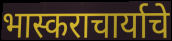
भास्कराचार्याचे